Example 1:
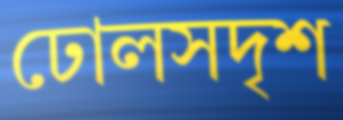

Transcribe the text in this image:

ঢোলসদৃশ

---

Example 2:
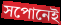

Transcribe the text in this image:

সপোনেই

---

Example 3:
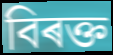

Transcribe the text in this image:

বিৰক্ত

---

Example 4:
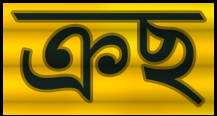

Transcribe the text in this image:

ক্ৰছ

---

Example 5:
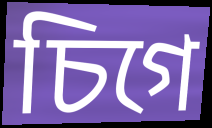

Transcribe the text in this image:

চিগে